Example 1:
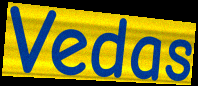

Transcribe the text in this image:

Vedas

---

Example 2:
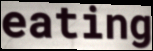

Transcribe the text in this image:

eating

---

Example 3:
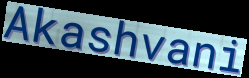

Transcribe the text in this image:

Akashvani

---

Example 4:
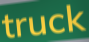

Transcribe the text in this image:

truck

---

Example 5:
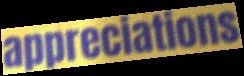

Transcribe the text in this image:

appreciations